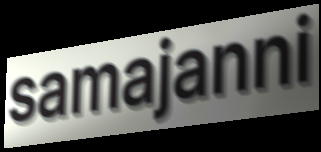
samajanni